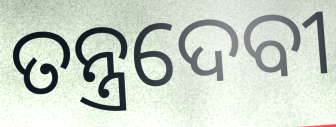
ତନ୍ତ୍ରଦେବୀ